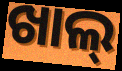
ଖାଲ୍